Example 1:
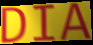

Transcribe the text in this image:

DIA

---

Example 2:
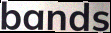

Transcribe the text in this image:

bands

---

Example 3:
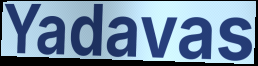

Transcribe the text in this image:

Yadavas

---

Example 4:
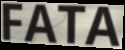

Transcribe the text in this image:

FATA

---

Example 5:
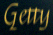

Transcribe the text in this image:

Getty